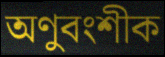
অণুবংশীক